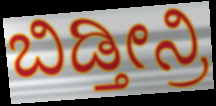
ಬಿಡ್ತೀನ್ರಿ